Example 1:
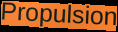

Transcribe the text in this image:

Propulsion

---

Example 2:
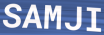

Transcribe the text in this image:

SAMJI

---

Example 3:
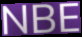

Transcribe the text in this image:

NBE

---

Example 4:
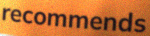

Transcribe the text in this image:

recommends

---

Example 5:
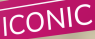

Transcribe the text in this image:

ICONIC